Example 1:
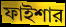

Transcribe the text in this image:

ফাইশার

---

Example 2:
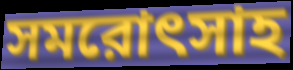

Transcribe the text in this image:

সমরোৎসাহ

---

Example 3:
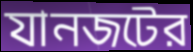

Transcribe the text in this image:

যানজটের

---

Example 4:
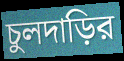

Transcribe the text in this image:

চুলদাড়ির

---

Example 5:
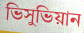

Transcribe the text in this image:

ভিসুভিয়ান